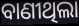
ବାଣୀଥିଲା